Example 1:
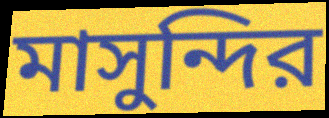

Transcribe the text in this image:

মাসুন্দির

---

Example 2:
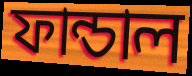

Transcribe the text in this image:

ফান্ডাল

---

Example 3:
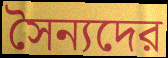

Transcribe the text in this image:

সৈন্যদের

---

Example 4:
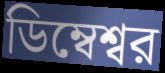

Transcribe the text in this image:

ডিম্বেশ্বর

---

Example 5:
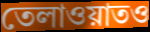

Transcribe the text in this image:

তেলাওয়াতও